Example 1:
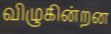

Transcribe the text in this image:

விழுகின்றன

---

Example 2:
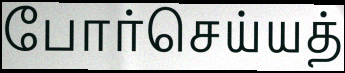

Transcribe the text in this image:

போர்செய்யத்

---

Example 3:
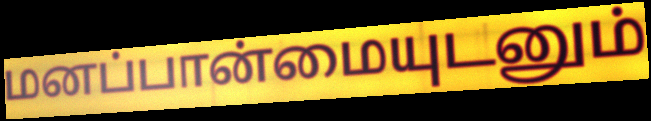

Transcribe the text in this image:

மனப்பான்மையுடனும்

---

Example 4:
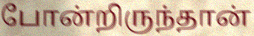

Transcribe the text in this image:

போன்றிருந்தான்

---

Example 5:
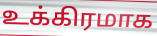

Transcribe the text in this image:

உக்கிரமாக